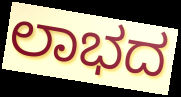
ಲಾಭದ